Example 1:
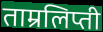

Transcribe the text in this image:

ताम्रलिप्ती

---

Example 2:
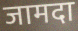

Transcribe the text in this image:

जामदा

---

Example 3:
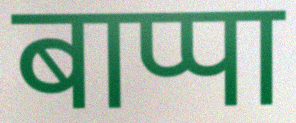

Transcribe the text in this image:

बाप्पा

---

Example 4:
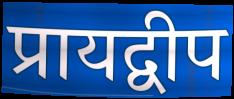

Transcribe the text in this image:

प्रायद्वीप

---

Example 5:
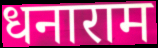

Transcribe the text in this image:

धनाराम